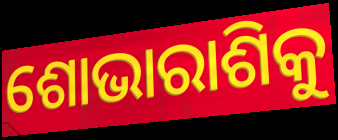
ଶୋଭାରାଶିକୁ